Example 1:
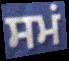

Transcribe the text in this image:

ਸਮਂ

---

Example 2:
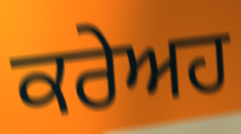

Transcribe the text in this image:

ਕਰੇਅਹ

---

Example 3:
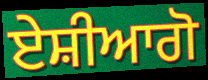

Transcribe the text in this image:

ਏਸ਼ੀਆਗੋ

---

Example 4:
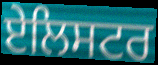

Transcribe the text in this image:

ਏਲਿਸਟਰ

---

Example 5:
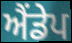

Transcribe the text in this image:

ਐਂਡੇਪ